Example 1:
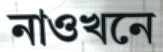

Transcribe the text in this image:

নাওখনে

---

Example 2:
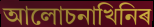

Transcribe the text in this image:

আলোচনাখিনিৰ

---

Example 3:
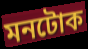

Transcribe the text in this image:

মনটোক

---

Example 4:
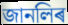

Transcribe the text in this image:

জানলিৰ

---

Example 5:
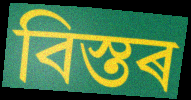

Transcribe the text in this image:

বিস্তৰ